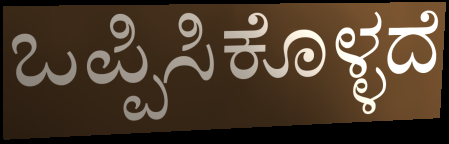
ಒಪ್ಪಿಸಿಕೊಳ್ಳದೆ